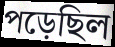
পড়েছিল